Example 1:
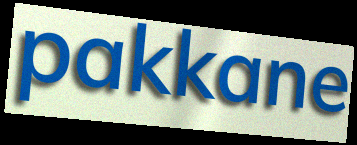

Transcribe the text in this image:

pakkane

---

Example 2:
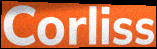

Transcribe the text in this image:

Corliss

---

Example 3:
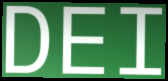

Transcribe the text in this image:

DEI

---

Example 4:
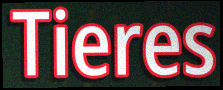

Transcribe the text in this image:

Tieres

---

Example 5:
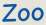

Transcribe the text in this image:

Zoo